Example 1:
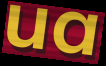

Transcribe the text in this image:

ua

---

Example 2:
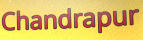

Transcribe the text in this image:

Chandrapur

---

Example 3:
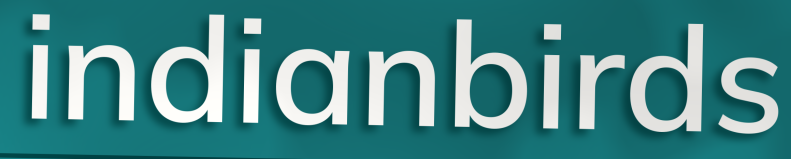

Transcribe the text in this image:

indianbirds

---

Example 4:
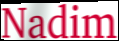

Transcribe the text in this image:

Nadim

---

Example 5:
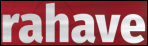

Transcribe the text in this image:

rahave